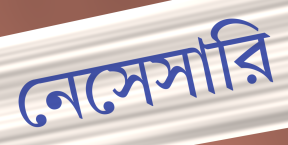
নেসেসারি